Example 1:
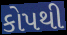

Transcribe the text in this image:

કોપથી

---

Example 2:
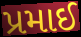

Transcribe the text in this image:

પ્રમાઈ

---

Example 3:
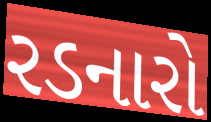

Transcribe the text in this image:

રડનારો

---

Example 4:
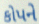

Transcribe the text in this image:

કોપને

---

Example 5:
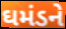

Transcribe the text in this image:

ઘમંડને